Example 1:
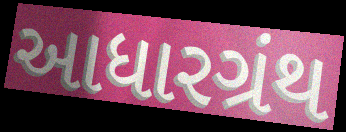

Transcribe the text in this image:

આધારગ્રંથ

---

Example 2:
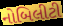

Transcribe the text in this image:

નોબિલીટી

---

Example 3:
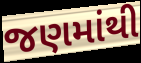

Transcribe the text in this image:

જણમાંથી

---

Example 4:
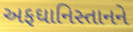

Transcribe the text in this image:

અફઘાનિસ્તાનને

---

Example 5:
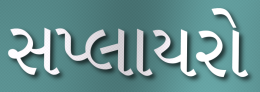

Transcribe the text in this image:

સપ્લાયરો